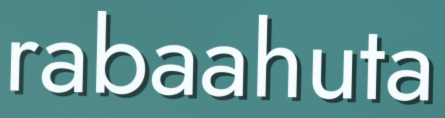
rabaahuta